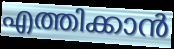
എത്തിക്കാൻ